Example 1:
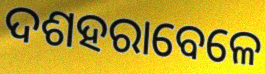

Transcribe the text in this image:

ଦଶହରାବେଳେ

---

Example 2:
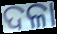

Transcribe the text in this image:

ଦଳା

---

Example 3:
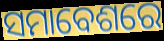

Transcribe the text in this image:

ସମାବେଶରେ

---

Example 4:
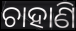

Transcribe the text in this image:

ଚାହାଣି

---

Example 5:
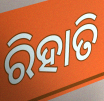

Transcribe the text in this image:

ରିହାତି